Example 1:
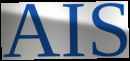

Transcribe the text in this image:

AIS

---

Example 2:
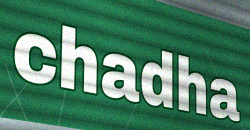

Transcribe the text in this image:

chadha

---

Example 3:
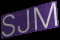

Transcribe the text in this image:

SJM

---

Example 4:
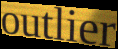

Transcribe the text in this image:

outlier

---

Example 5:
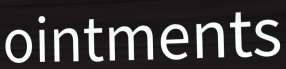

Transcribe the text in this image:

ointments